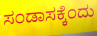
ಸಂಡಾಸಕ್ಕೆಂದು